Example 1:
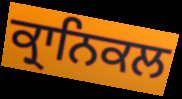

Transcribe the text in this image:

ਕ੍ਰਾਨਿਕਲ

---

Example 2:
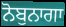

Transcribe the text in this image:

ਨੋਬੁਨਾਗਾ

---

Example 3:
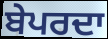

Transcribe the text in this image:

ਬੇਪਰਦਾ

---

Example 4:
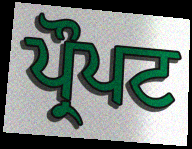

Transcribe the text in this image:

ਪ੍ਰੌਪਟ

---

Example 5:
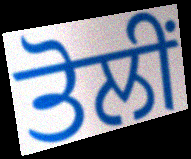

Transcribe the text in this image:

ਤੋਲੀਂ